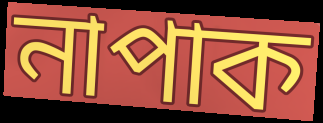
নাপাক